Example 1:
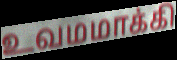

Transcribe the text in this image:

உவமமாக்கி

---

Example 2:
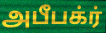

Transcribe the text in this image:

அபீபக்ர்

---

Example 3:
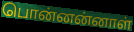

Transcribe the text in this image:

பொன்னன்னாள்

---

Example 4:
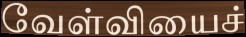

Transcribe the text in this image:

வேள்வியைச்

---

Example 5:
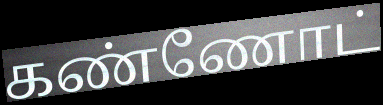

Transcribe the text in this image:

கண்ணோட்